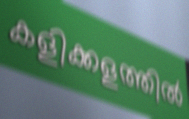
കളിക്കളത്തിൽ